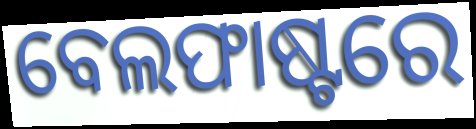
ବେଲଫାଷ୍ଟରେ